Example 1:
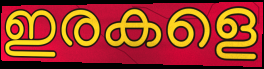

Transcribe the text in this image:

ഇരകളെ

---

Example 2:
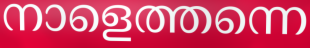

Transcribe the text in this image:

നാളെത്തന്നെ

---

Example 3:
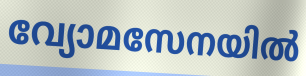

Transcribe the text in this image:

വ്യോമസേനയിൽ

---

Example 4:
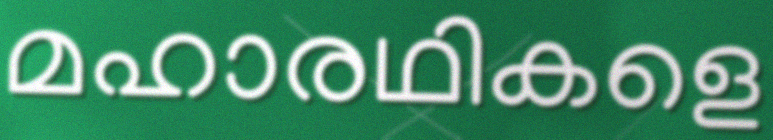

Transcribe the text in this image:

മഹാരഥികളെ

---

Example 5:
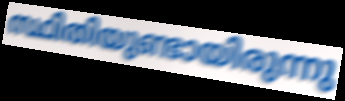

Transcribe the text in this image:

സ്ഥിതിയുണ്ടായിരുന്നു